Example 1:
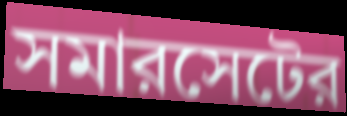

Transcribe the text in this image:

সমারসেটের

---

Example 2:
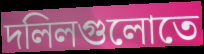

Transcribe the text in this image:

দলিলগুলোতে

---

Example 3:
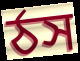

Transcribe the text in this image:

ঠস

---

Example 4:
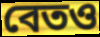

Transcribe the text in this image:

বেতও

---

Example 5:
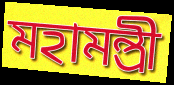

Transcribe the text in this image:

মহামন্ত্রী